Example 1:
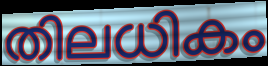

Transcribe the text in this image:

തിലധികം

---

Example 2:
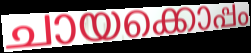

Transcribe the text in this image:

ചായക്കൊപ്പം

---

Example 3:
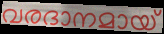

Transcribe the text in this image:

വരദാനമായ്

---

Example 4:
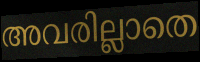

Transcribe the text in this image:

അവരില്ലാതെ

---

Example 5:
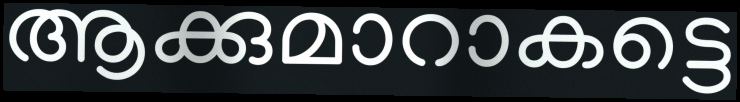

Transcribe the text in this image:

ആക്കുമാറാകട്ടെ